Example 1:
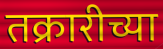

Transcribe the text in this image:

तक्रारीच्या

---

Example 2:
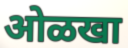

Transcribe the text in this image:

ओळखा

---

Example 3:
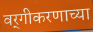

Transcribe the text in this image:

वर्गीकरणाच्या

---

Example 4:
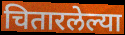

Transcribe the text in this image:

चितारलेल्या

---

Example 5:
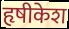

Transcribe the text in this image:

हृषीकेश